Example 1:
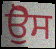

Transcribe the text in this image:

ਉੋਸ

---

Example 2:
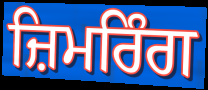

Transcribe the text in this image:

ਜ਼ਿਮਰਿੰਗ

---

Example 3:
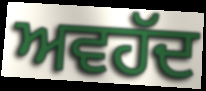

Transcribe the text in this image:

ਅਵਹੱਦ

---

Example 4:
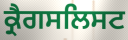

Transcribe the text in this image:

ਕ੍ਰੈਗਸਲਿਸਟ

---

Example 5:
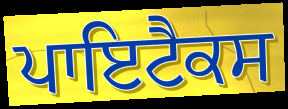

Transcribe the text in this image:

ਪਾਇਟੈਕਸ